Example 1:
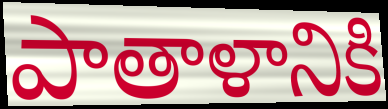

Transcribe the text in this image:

పాతాళానికి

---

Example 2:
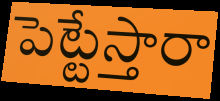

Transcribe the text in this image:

పెట్టేస్తారా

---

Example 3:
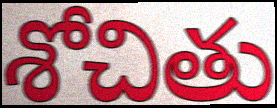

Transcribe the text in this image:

శోచితు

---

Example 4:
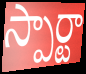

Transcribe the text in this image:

స్పార్టా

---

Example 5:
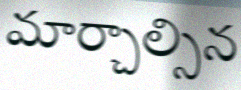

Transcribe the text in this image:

మార్చాల్సిన